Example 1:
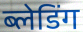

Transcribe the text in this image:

ब्लेडिंग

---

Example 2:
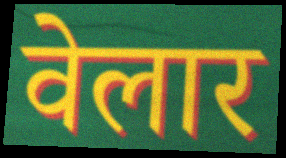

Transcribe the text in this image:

वेलार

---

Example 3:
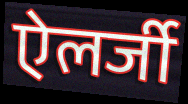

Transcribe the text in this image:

ऐलर्जी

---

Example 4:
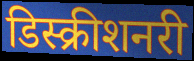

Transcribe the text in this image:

डिस्क्रीशनरी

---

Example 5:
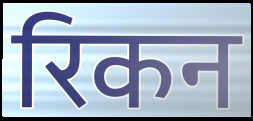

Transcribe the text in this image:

रिकन